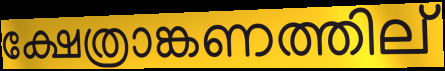
ക്ഷേത്രാങ്കണത്തില്